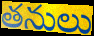
తనులు